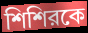
শিশিরকে